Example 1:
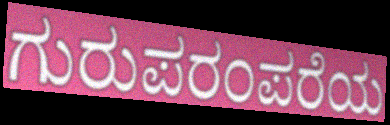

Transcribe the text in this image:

ಗುರುಪರಂಪರೆಯ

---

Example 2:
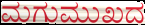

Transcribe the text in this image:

ಮಗುಮುಖದ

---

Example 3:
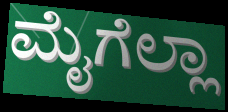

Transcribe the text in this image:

ಮೈಗೆಲ್ಲಾ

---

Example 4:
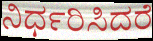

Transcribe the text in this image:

ನಿರ್ಧರಿಸಿದರೆ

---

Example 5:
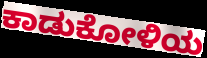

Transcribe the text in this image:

ಕಾಡುಕೋಳಿಯ